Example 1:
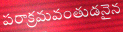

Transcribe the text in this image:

పరాక్రమవంతుడనైన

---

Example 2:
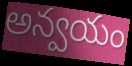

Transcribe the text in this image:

అన్వయం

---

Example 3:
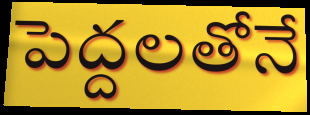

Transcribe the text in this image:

పెద్దలతోనే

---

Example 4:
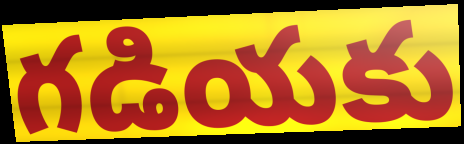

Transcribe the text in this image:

గడియకు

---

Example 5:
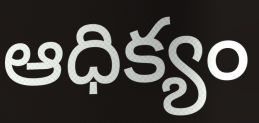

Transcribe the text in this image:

ఆధిక్యం